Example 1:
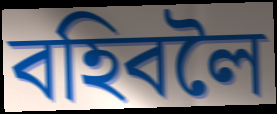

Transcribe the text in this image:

বহিবলৈ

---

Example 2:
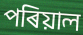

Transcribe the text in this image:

পৰিয়াল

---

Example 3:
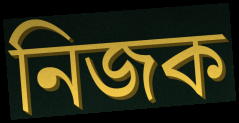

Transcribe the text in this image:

নিজক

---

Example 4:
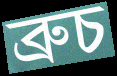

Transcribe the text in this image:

ব্ৰুচ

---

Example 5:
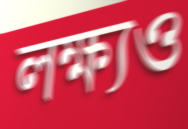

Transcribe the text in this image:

লক্ষ্যও